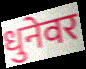
धुनेवर